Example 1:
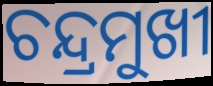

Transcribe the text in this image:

ଚନ୍ଦ୍ରମୁଖୀ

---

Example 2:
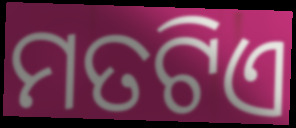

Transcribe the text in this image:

ମତଟିଏ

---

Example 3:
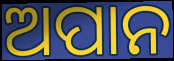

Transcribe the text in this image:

ଅପାନ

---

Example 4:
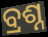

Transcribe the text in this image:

ବ୍ରଶ୍ନ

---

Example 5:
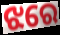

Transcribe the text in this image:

ଝରେ